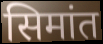
सिमांत